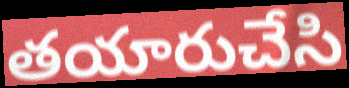
తయారుచేసి